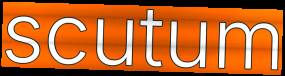
scutum